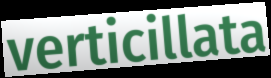
verticillata